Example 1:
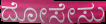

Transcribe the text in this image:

ದೋಸೇಸು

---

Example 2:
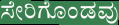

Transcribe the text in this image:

ಸೇರಿಗೊಂಡವು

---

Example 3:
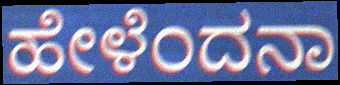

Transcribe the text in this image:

ಹೇಳೆಂದನಾ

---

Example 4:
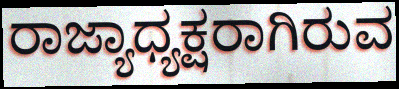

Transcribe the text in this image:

ರಾಜ್ಯಾಧ್ಯಕ್ಷರಾಗಿರುವ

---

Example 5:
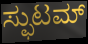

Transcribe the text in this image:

ಸ್ಫುಟಮ್